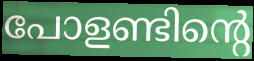
പോളണ്ടിന്റെ